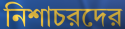
নিশাচরদের